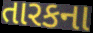
તારકના